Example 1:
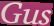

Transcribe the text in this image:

Gus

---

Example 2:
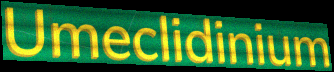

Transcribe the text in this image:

Umeclidinium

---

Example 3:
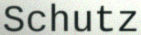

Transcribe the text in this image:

Schutz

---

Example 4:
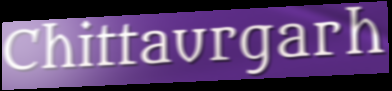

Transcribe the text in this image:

Chittaurgarh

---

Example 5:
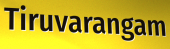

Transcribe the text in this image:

Tiruvarangam